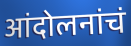
आंदोलनांचं